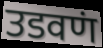
उडवणं